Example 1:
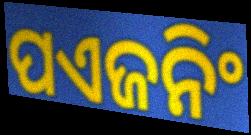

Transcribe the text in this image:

ପଏଜନିଂ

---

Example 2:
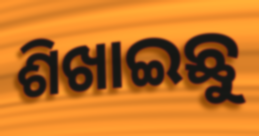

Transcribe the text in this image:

ଶିଖାଇଛୁ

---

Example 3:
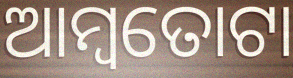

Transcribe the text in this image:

ଆମ୍ବତୋଟା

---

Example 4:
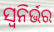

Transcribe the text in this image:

ସ୍ୱନିର୍ଭର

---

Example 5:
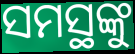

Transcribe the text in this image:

ସମସ୍ଥଙ୍କୁ